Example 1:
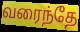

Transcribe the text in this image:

வரைந்தே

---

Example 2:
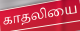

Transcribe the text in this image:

காதலியை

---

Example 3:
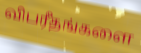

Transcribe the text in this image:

விபரீதங்களை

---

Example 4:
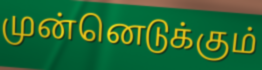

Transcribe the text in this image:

முன்னெடுக்கும்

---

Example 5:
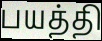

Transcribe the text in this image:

பயத்தி